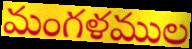
మంగళముల